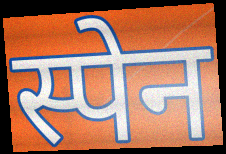
स्पेन